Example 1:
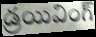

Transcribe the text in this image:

డ్రయివింగ్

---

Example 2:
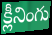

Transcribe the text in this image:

క్లీనింగు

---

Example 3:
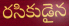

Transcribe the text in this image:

రసికుడైన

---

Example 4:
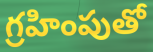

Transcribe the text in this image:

గ్రహింపుతో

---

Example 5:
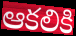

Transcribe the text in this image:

ఆకలికి